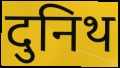
दुनिथ